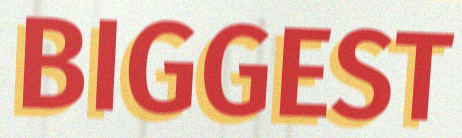
BIGGEST